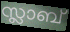
സ്ലാബ്